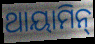
ଥାୟାମିନ୍